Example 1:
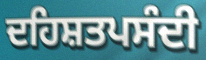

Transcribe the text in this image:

ਦਹਿਸ਼ਤਪਸੰਦੀ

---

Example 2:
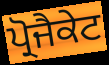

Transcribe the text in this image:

ਪ੍ਰੋਜੈਕੇਟ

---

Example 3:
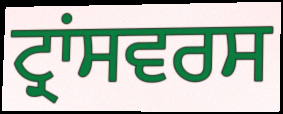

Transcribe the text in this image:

ਟ੍ਰਾਂਸਵਰਸ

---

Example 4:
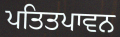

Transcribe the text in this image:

ਪਤਿਤਪਾਵਨ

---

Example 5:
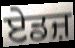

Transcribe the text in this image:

ਏਡਜ਼